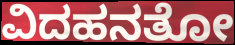
ವಿದಹನತೋ